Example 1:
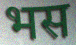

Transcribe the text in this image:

भस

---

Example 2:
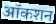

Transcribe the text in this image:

ऑकशन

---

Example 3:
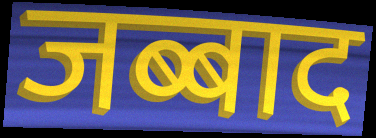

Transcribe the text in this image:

जब्बाद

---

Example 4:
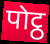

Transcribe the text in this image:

पोट्ठ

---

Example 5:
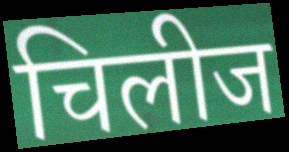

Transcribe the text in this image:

चिलीज